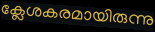
ക്ലേശകരമായിരുന്നു